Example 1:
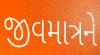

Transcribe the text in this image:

જીવમાત્રને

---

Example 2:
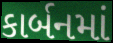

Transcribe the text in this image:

કાર્બનમાં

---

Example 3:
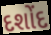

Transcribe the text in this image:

દશોંદ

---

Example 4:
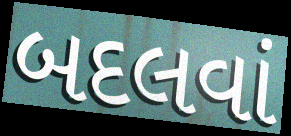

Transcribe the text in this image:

બદલવાં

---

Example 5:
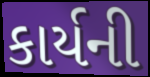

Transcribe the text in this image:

કાર્યની